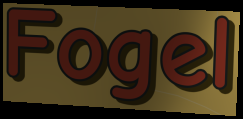
Fogel